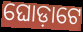
ଘୋଡ଼ାଟେ